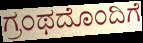
ಗ್ರಂಥದೊಂದಿಗೆ